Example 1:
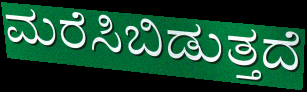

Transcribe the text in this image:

ಮರೆಸಿಬಿಡುತ್ತದೆ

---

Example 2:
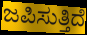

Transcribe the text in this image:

ಜಪಿಸುತ್ತಿದೆ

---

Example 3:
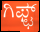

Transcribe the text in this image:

ಗಿಫ್ಟ್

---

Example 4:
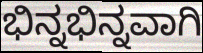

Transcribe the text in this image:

ಭಿನ್ನಭಿನ್ನವಾಗಿ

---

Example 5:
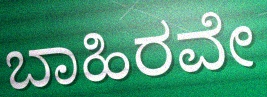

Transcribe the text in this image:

ಬಾಹಿರವೇ